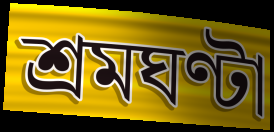
শ্রমঘণ্টা